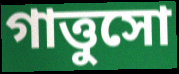
গাত্তুসো